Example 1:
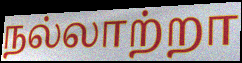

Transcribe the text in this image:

நல்லாற்றா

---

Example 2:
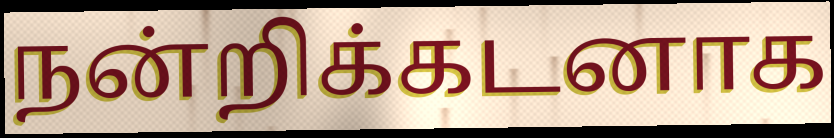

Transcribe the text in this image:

நன்றிக்கடனாக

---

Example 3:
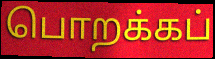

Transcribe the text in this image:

பொறக்கப்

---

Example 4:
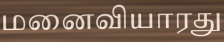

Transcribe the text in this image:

மனைவியாரது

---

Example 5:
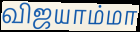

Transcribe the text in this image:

விஜயாம்மா